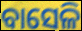
ବାସେଳି